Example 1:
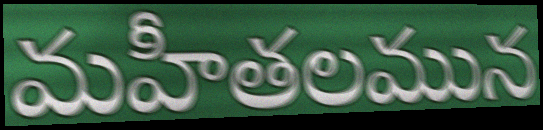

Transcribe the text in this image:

మహీతలమున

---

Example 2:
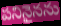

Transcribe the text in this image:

పనినైనను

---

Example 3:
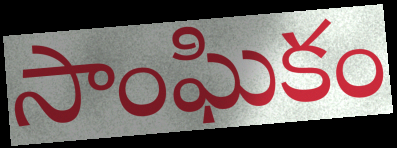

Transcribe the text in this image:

సాంఘికం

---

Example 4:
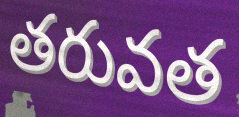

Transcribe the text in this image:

తరువత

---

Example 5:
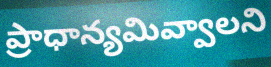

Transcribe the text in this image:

ప్రాధాన్యమివ్వాలని